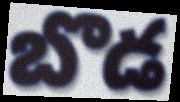
బొడ